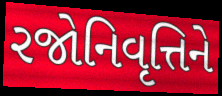
રજોનિવૃત્તિને